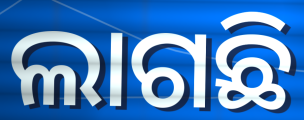
ଲାଗଛି